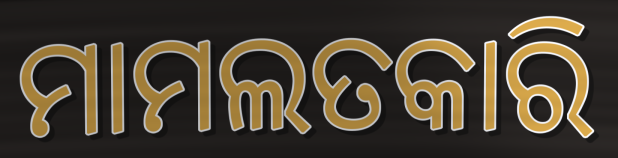
ମାମଲତକାରି